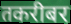
तकरीबर